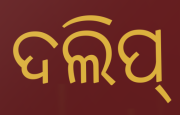
ଦଲିପ୍